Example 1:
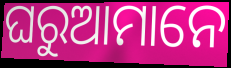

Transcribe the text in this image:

ଘରୁଆମାନେ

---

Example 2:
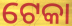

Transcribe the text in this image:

ଟେକା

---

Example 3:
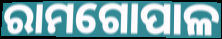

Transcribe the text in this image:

ରାମଗୋପାଳ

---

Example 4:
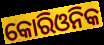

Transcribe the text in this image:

କୋରିଓନିକ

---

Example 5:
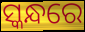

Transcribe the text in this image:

ସ୍କନ୍ଧରେ